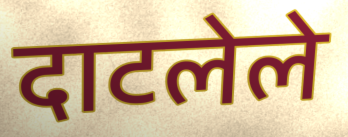
दाटलेले